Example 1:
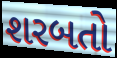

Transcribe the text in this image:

શરબતો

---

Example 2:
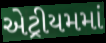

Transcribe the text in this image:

એટ્રીયમમાં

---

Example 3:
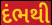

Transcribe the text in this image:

દંભથી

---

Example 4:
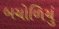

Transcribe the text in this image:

બચોળિયું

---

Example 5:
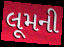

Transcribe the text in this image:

લૂમની